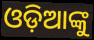
ଓଡ଼ିଆଙ୍କୁ